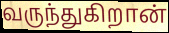
வருந்துகிறான்